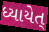
ધ્યાયેત્